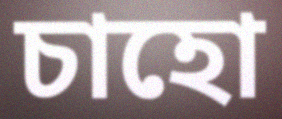
চাহো